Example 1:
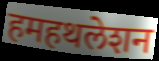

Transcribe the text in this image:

हमहथलेशन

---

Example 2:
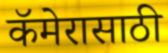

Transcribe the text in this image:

कॅमेरासाठी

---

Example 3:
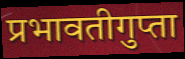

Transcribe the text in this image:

प्रभावतीगुप्ता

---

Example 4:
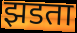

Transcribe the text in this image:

झडता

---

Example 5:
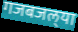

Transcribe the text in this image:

गजबजल्या